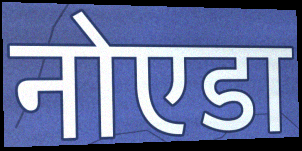
नोएडा